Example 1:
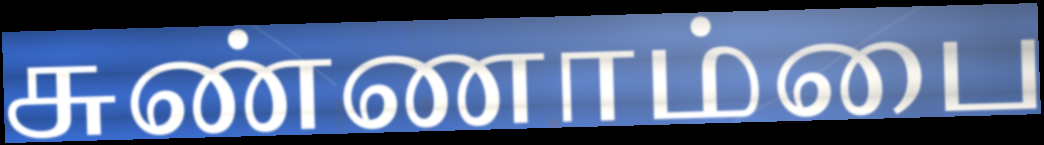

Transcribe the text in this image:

சுண்ணாம்பை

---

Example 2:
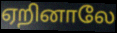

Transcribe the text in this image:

ஏறினாலே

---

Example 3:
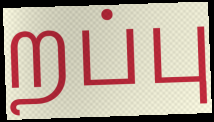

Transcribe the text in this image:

றப்பு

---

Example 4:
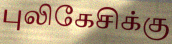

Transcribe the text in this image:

புலிகேசிக்கு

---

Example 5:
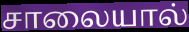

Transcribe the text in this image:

சாலையால்